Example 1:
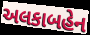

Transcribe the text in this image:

અલકાબહેન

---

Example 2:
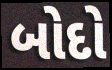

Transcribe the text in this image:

બોદો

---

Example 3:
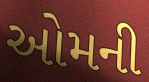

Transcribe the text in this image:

ઓમની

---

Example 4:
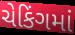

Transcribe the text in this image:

ચેકિંગમાં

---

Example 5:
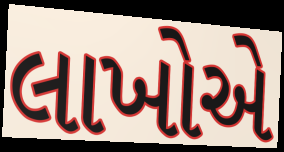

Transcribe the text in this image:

લાખોએ